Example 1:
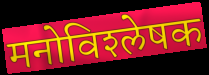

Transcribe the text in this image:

मनोविश्लेषक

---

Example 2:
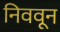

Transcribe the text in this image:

निववून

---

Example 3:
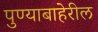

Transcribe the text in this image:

पुण्याबाहेरील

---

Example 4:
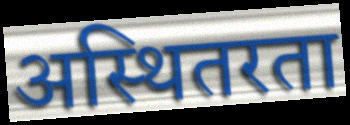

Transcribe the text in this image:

अस्थितरता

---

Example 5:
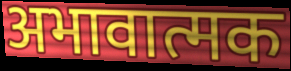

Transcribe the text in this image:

अभावात्मक